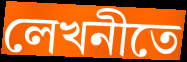
লেখনীতে